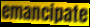
emancipate